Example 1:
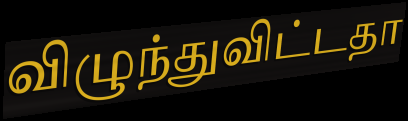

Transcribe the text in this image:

விழுந்துவிட்டதா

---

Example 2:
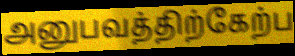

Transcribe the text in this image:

அனுபவத்திற்கேற்ப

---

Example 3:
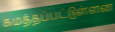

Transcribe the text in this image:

சுமத்தப்பட்டுள்ளன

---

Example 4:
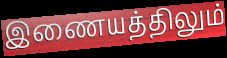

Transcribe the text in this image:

இணையத்திலும்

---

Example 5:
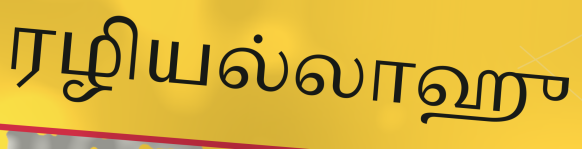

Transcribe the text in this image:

ரழியல்லாஹு